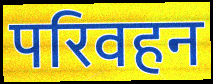
परिवहन